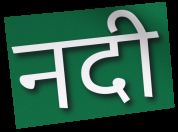
नदी